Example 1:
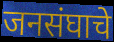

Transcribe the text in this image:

जनसंघाचे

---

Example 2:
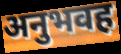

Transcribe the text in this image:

अनुभवह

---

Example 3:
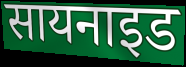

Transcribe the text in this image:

सायनाइड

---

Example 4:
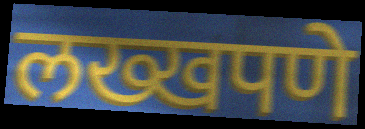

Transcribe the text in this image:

लख्खपणे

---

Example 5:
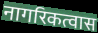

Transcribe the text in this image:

नागरिकत्वास